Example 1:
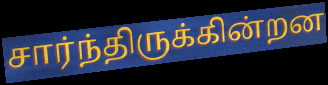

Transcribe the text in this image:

சார்ந்திருக்கின்றன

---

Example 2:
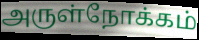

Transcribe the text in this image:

அருள்நோக்கம்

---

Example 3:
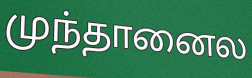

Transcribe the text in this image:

முந்தானைல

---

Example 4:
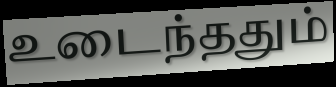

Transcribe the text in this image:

உடைந்ததும்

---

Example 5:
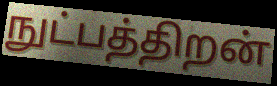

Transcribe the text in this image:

நுட்பத்திறன்